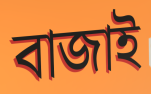
বাজাই